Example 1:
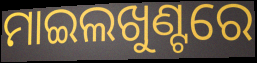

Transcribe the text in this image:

ମାଇଲଖୁଣ୍ଟରେ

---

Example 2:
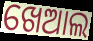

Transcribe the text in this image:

ଖେଆଲ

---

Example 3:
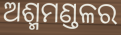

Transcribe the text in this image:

ଅଶ୍ମମଣ୍ଡଳର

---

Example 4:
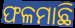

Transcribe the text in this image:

ଫଳମାଛି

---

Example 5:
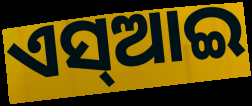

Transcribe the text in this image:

ଏସ୍ଆଇ